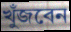
খুঁজবেন